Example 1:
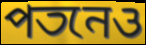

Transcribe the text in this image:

পতনেও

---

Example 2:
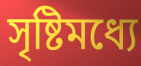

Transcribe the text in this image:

সৃষ্টিমধ্যে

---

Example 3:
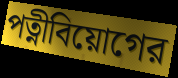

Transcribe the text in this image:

পত্নীবিয়োগের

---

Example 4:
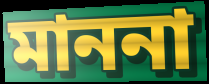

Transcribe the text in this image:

মাননা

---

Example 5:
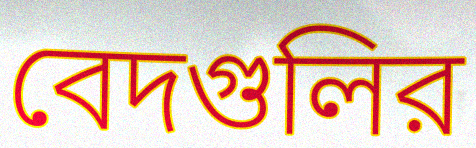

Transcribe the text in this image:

বেদগুলির